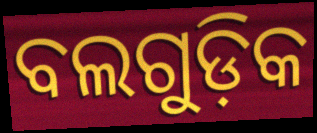
ବଲଗୁଡ଼ିକ